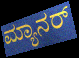
ಮ್ಯಾನರ್